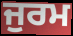
ਜੁਰਮ